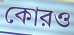
কোরও